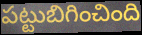
పట్టుబిగించింది